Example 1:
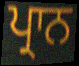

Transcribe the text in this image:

ਪ੍ਰਾਨ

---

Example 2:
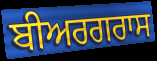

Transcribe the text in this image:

ਬੀਅਰਗਰਾਸ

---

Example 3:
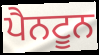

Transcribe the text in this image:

ਪੈਨਟੂਨ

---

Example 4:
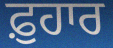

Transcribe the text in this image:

ਫ਼ੁਹਾਰ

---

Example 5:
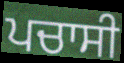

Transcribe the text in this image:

ਪਚਾਸੀ